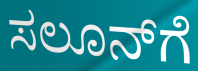
ಸಲೂನ್‍ಗೆ